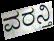
ವರನ್ತಿ